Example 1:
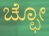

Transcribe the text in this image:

ಚ್ಛೋ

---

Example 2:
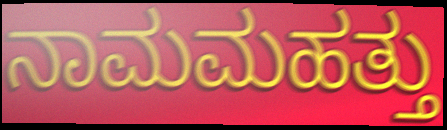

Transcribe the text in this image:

ನಾಮಮಹತ್ತು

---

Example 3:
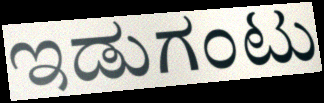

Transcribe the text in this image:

ಇಡುಗಂಟು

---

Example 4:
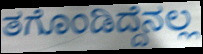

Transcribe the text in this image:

ತಗೊಂಡಿದ್ದೆನಲ್ಲ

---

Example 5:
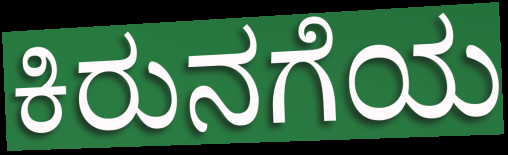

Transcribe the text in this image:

ಕಿರುನಗೆಯ